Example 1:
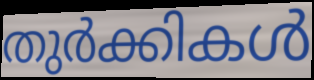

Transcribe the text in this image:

തുർക്കികൾ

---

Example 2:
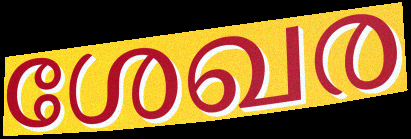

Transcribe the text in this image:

ശേഖര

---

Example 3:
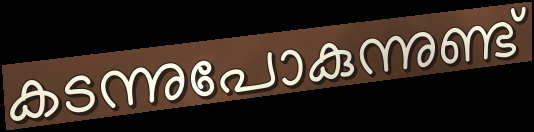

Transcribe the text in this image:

കടന്നുപോകുന്നുണ്ട്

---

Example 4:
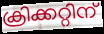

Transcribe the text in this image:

ക്രിക്കറ്റിന്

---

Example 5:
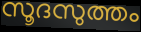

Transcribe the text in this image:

സൂദസുത്തം